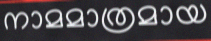
നാമമാത്രമായ